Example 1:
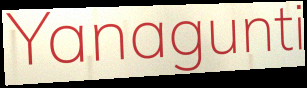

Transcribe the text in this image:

Yanagunti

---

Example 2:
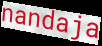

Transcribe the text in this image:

nandaja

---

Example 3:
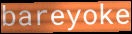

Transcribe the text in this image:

bareyoke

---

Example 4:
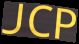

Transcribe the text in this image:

JCP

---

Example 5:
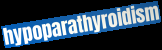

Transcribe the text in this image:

hypoparathyroidism